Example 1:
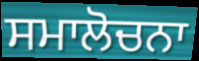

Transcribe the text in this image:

ਸਮਾਲੋਚਨਾ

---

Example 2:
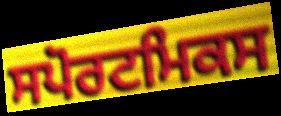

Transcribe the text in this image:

ਸਪੋਰਟਮਿਕਸ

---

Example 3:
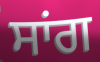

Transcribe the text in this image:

ਸਾਂਗ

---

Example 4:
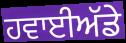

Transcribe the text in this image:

ਹਵਾਈਅੱਡੇ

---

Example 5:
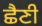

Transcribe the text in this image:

ਛੈਣੀ